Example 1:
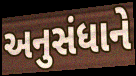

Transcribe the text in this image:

અનુસંધાને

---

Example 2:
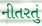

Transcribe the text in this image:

નીતરતું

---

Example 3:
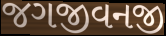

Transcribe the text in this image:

જગજીવનજી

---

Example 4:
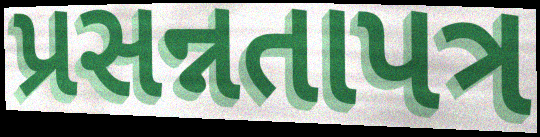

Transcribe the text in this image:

પ્રસન્નતાપત્ર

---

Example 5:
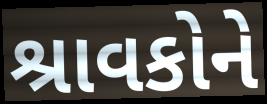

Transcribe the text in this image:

શ્રાવકોને